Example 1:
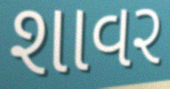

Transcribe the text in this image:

શાવર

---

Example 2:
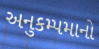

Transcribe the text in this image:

અનુકમ્પમાનો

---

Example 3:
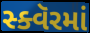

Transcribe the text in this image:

સ્ક્વૅરમાં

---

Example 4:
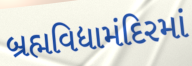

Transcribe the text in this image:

બ્રહ્મવિદ્યામંદિરમાં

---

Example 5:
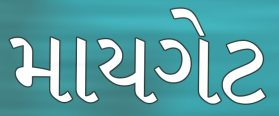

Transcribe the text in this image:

માયગેટ